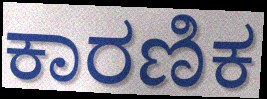
ಕಾರಣಿಕ